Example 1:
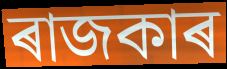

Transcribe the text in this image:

ৰাজকাৰ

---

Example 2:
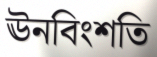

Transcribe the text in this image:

ঊনবিংশতি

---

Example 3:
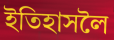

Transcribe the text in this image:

ইতিহাসলৈ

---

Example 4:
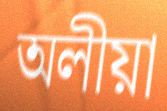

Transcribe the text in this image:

অলীয়া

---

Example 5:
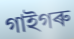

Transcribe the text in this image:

গাইগৰু